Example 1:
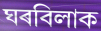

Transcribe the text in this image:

ঘৰবিলাক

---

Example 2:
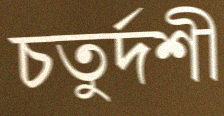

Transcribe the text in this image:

চতুৰ্দশী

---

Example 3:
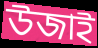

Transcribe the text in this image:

উজাই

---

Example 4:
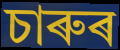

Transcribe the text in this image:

চাৰুৰ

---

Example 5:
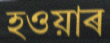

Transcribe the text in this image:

হওয়াৰ